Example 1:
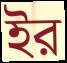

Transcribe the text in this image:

ইর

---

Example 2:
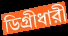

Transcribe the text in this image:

ডিগ্রীধারী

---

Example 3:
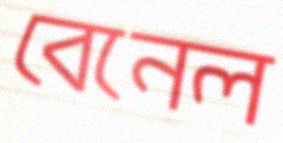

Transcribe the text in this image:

বেনেল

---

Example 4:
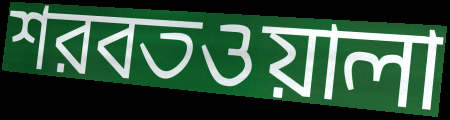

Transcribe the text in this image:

শরবতওয়ালা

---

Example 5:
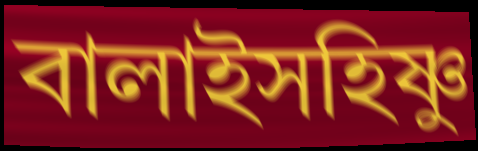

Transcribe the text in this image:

বালাইসহিষ্ণু